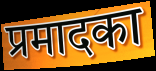
प्रमादका